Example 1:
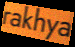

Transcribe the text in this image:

rakhya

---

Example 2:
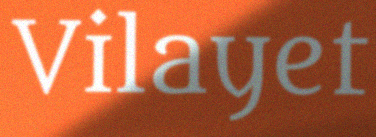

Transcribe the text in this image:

Vilayet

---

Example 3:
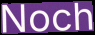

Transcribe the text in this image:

Noch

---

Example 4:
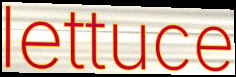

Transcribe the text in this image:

lettuce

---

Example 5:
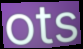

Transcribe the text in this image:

ots